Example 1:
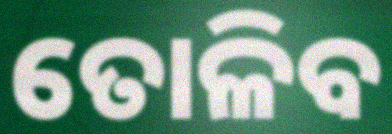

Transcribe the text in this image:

ତୋଳିବ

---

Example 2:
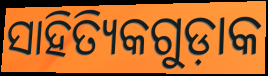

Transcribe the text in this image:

ସାହିତ୍ୟିକଗୁଡ଼ାକ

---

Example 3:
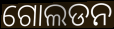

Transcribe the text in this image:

ଗୋଲଡନ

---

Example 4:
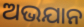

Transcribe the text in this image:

ଅଭଯାନ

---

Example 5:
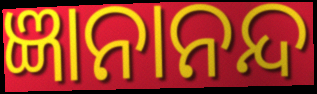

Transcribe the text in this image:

ଜ୍ଞାନାନନ୍ଦ